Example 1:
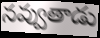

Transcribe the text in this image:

నవ్వుతాడు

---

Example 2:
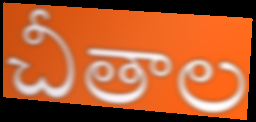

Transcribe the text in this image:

చీతాల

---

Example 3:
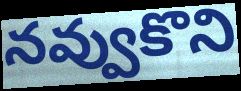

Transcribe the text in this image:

నవ్వుకొని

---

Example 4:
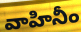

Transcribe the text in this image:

వాహినీం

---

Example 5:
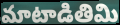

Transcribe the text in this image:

మాటాడితిమి